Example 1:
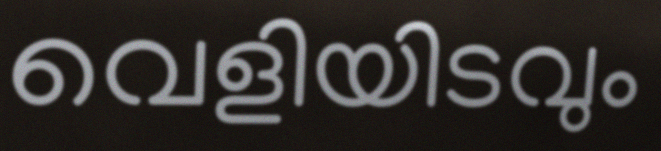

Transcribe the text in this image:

വെളിയിടവും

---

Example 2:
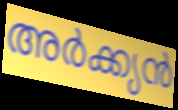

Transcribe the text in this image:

അർക്ക്യൻ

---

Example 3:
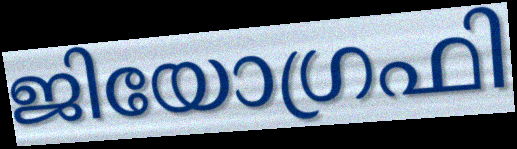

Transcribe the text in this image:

ജിയോഗ്രഫി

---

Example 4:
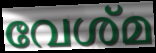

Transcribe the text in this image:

വേശ്മ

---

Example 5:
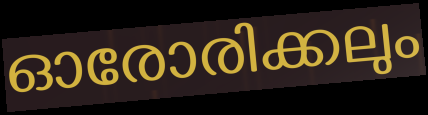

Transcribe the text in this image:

ഓരോരിക്കലും